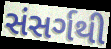
સંસર્ગથી